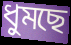
ধুমছে